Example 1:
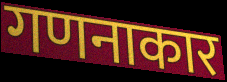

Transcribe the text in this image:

गणनाकार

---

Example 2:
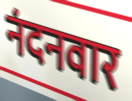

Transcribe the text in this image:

नंदनवार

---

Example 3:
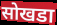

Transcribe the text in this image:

सोखडा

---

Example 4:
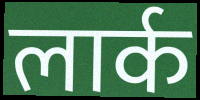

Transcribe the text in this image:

लार्क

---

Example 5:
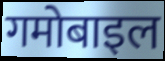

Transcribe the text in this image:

गमोबाइल